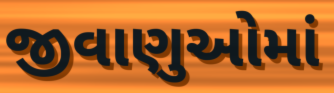
જીવાણુઓમાં